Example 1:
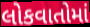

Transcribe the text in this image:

લોકવાતોમાં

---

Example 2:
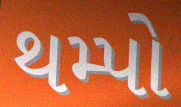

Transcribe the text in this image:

થમ્પો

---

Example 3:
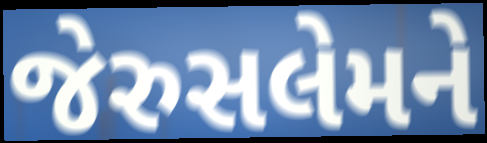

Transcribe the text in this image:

જેરુસલેમને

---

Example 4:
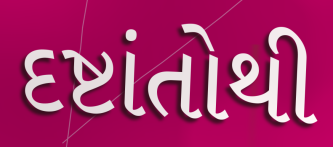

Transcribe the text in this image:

દષ્ટાંતોથી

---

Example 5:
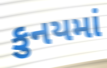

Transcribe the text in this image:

કુનયમાં